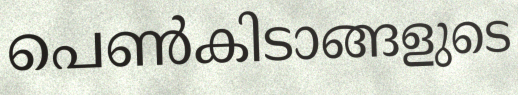
പെൺകിടാങ്ങളുടെ